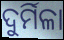
ଦୁର୍ମିଳା